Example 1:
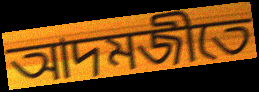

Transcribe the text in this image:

আদমজীতে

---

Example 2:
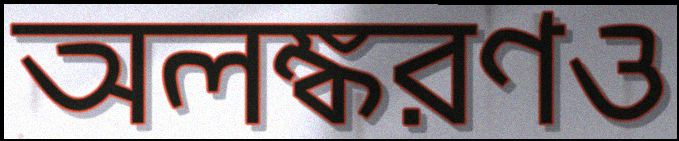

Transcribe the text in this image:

অলঙ্করণও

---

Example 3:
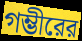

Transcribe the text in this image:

গম্ভীরের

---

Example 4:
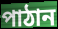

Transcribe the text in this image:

পাঠান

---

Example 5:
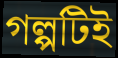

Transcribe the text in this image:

গল্পটিই